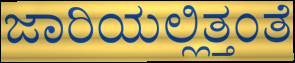
ಜಾರಿಯಲ್ಲಿತ್ತಂತೆ